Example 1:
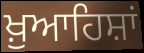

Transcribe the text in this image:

ਖ਼ੁਆਹਿਸ਼ਾਂ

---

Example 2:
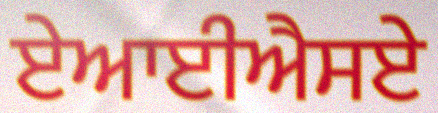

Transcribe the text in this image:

ਏਆਈਐਸਏ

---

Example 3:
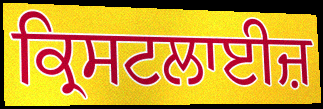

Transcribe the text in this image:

ਕ੍ਰਿਸਟਲਾਈਜ਼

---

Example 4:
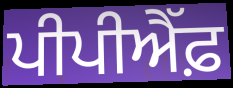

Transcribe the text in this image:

ਪੀਪੀਐੱਫ਼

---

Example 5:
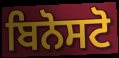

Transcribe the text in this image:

ਬਿਨੋਸਟੋ